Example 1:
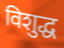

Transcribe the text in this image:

विशुद्ध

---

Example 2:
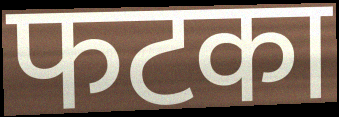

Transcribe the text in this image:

फटका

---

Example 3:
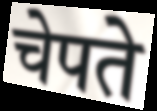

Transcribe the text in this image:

चेपते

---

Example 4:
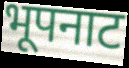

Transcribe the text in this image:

भूपनाट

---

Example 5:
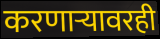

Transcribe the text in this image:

करणाऱ्यावरही